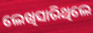
ଲେଖିସାରିଥିଲେ